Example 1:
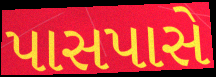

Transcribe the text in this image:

પાસપાસે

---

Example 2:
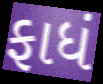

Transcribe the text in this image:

ફાધં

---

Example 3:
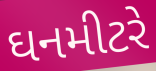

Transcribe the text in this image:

ઘનમીટરે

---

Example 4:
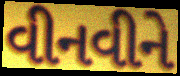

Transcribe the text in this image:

વીનવીને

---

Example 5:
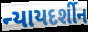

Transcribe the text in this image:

ન્યાયદર્શીન